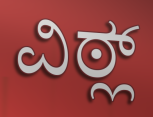
ವಿಠ್ಲ್